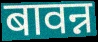
बावन्न